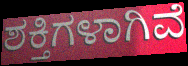
ಶಕ್ತಿಗಳಾಗಿವೆ